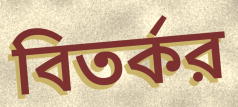
বিতর্কর